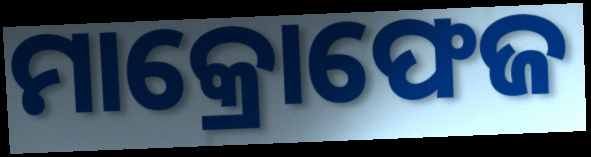
ମାକ୍ରୋଫେଜ